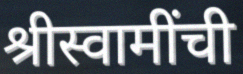
श्रीस्वामींची